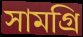
সামগ্রি